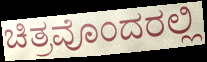
ಚಿತ್ರವೊಂದರಲ್ಲಿ